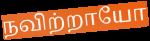
நவிற்றாயோ